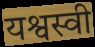
यश्वस्वी